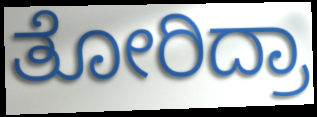
ತೋರಿದ್ರಾ